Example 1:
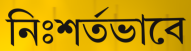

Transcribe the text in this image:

নিঃশর্তভাবে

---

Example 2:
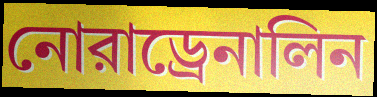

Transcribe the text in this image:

নোরাড্রেনালিন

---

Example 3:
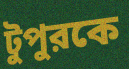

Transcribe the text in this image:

টুপুরকে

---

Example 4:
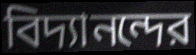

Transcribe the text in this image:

বিদ্যানন্দের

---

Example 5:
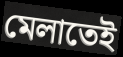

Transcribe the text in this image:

মেলাতেই